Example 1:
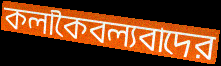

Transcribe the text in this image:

কলাকৈবল্যবাদের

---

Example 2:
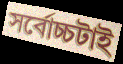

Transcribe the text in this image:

সর্বোচ্চটাই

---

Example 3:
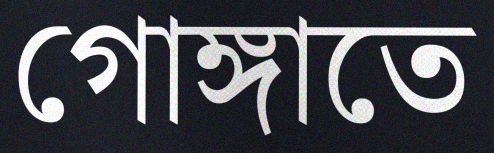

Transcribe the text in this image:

গোঙ্গাতে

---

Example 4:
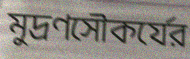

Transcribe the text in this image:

মুদ্রণসৌকর্যের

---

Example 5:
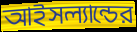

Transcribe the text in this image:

আইসল্যান্ডের